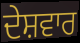
ਦੇਸ਼ਵਾਰ